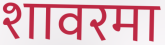
शावरमा